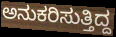
ಅನುಕರಿಸುತ್ತಿದ್ದ